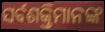
ସର୍ବଶକ୍ତିମାନଙ୍କ